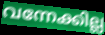
വന്നേക്കില്ല